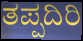
ತಪ್ಪದಿರಿ